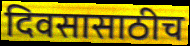
दिवसासाठीच